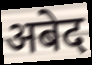
अबेद